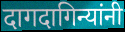
दागदागिन्यांनी